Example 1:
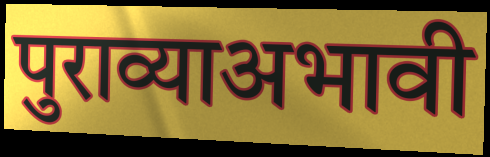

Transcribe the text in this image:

पुराव्याअभावी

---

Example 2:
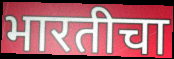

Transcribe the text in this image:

भारतीचा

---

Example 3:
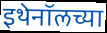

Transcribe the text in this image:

इथेनॉलच्या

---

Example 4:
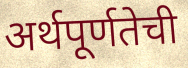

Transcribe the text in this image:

अर्थपूर्णतेची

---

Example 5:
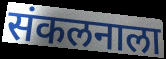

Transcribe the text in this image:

संकलनाला